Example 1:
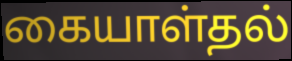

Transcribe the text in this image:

கையாள்தல்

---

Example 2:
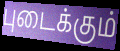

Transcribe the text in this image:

புடைக்கும்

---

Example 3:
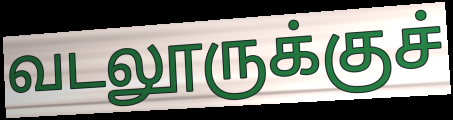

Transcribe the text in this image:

வடலூருக்குச்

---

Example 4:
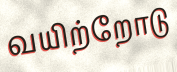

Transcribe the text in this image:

வயிற்றோடு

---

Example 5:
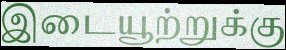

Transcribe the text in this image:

இடையூற்றுக்கு